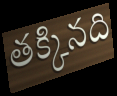
తక్కినది